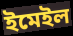
ইমেইল